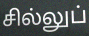
சில்லுப்